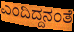
ಎಂದಿದ್ದನಂತೆ